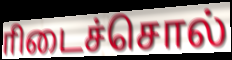
ரிடைச்சொல்